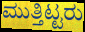
ಮುತ್ತಿಟ್ಟರು